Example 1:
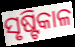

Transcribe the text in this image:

ସୃଷ୍ଟିକାଳ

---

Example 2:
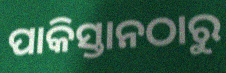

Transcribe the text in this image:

ପାକିସ୍ତାନଠାରୁ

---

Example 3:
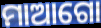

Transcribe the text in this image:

ମାଆଗୋ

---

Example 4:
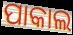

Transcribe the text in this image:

ପାକାଲ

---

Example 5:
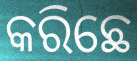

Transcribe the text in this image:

କରିଛେ